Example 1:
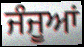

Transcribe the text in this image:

ਜੰਜੂਆਂ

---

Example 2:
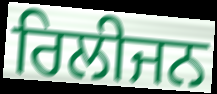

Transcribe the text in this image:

ਰਿਲੀਜਨ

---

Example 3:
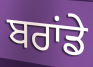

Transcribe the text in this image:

ਬਰਾਂਡੇ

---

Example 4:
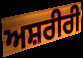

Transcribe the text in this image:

ਅਸ਼ਰੀਰੀ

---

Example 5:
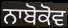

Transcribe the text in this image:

ਨਾਬੋਕੋਵ